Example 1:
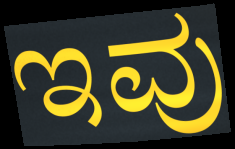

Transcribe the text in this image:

ಇವು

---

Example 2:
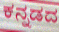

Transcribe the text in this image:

ಕನ್ನಡದ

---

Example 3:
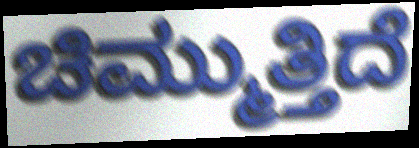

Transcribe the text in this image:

ಚಿಮ್ಮುತ್ತಿದೆ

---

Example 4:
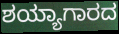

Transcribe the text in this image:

ಶಯ್ಯಾಗಾರದ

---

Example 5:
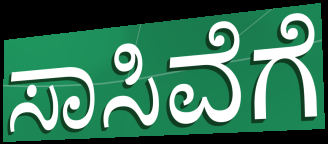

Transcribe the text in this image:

ಸಾಸಿವೆಗೆ